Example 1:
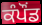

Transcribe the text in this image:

ਕੰਪੌਂਡ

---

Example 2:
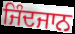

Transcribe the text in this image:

ਜਿੰਦਜਾਨ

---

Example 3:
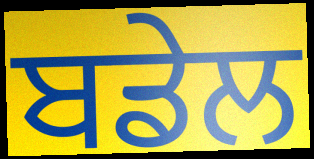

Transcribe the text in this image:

ਬਡੇਲ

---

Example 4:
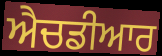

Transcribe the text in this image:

ਐਚਡੀਆਰ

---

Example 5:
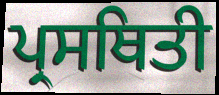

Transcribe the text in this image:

ਪ੍ਰਸਥਿਤੀ